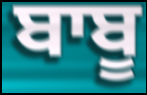
ਬਾਬੂ